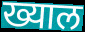
ख्याल